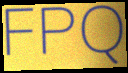
FPQ